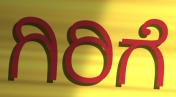
ಗಿರಿಗೆ